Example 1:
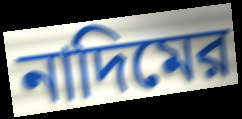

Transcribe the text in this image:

নাদিমের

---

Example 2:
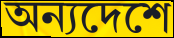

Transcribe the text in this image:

অন্যদেশে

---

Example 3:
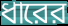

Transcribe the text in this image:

ধারের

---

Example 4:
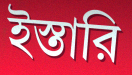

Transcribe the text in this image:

ইস্তারি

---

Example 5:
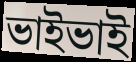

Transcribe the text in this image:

ভাইভাই